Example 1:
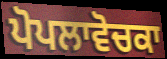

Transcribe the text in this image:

ਪੋਪਲਾਵੋਚਕਾ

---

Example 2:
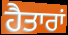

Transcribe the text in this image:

ਹੈਤਾਰਾਂ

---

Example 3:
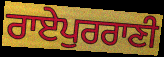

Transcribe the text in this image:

ਰਾਏਪੁਰਰਾਣੀ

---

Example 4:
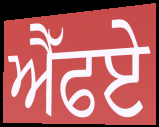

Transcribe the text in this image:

ਐੱਫਏ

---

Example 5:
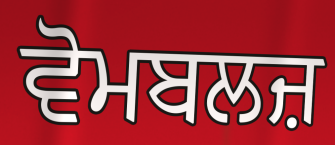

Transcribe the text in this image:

ਵੋਮਬਲਜ਼